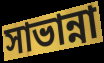
সাভান্না